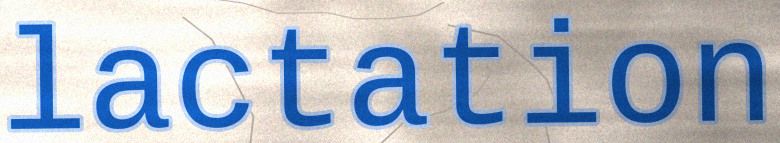
lactation